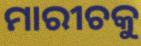
ମାରୀଚକୁ